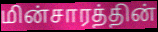
மின்சாரத்தின்